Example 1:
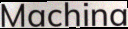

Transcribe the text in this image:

Machina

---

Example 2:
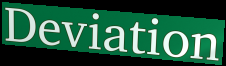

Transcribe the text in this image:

Deviation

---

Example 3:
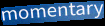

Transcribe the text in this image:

momentary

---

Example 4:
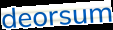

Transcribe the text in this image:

deorsum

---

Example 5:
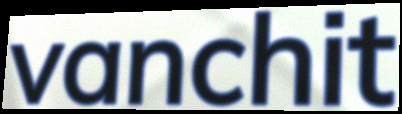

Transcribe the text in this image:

vanchit